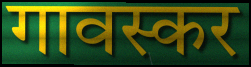
गावस्कर